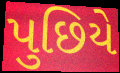
પુછિયે